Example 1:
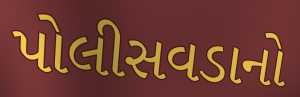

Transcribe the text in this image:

પોલીસવડાનો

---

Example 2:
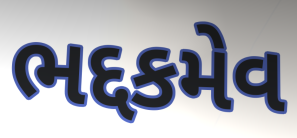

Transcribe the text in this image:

ભદ્દકમેવ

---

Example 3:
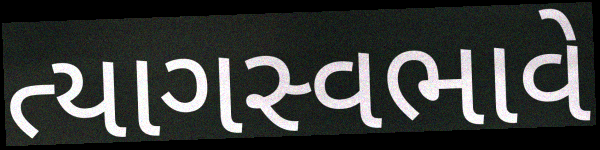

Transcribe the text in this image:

ત્યાગસ્વભાવે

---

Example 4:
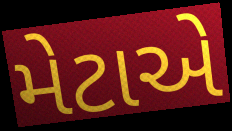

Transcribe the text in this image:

મેટાએ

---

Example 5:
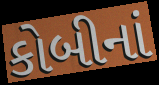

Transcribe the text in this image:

કોબીનાં